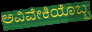
ಅವಿವೇಕಿಯೊಬ್ಬ